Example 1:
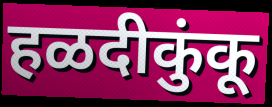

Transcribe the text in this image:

हळदीकुंकू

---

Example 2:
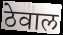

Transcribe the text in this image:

ठेवाल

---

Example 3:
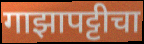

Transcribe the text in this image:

गाझापट्टीचा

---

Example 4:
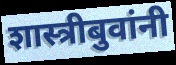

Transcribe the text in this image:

शास्त्रीबुवांनी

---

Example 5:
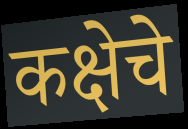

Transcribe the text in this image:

कक्षेचे